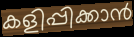
കളിപ്പിക്കാൻ